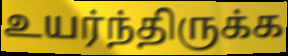
உயர்ந்திருக்க